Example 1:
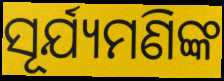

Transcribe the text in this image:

ସୂର୍ଯ୍ୟମଣିଙ୍କ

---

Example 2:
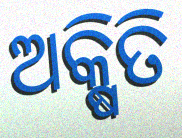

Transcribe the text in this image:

ଅକ୍ଷିତି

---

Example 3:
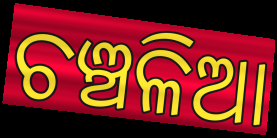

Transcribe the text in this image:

ଚଞ୍ଚଳିଆ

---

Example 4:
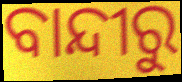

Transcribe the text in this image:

ବାନ୍ଦୀରୁ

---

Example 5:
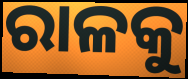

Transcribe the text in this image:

ରାଳକୁ